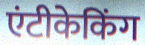
एंटीकेकिंग